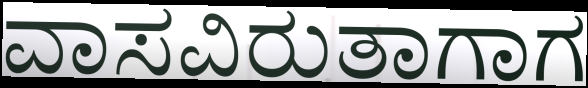
ವಾಸವಿರುತಾಗಾಗ